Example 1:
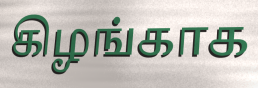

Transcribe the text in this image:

கிழங்காக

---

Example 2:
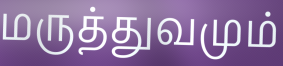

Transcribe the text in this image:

மருத்துவமும்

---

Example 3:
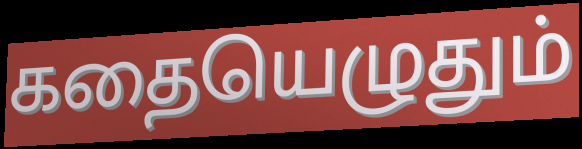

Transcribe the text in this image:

கதையெழுதும்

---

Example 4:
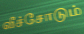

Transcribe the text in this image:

வீச்சோடும்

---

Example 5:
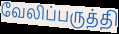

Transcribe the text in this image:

வேலிப்பருத்தி